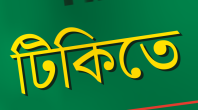
টিকিতে